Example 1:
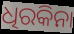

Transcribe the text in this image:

ଧିରକିନା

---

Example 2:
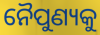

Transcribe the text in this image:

ନୈପୁଣ୍ୟକୁ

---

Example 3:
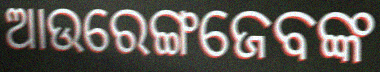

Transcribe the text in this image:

ଆଉରେଙ୍ଗଜେବଙ୍କ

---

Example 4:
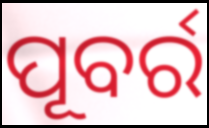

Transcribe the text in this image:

ପୂବର୍ର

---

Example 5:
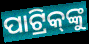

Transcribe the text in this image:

ପାଟ୍ରିକ୍‌ଙ୍କୁ